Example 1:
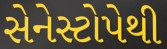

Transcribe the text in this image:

સેનેસ્ટોપેથી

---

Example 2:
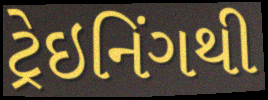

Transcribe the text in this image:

ટ્રેઇનિંગથી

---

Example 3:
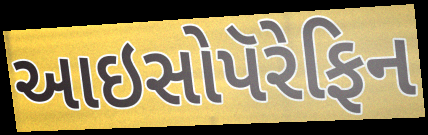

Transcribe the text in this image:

આઇસોપૅરેફિન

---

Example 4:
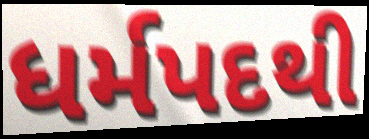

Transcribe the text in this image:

ધર્મપદથી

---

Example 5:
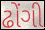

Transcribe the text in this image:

ઢોંગી